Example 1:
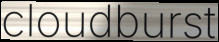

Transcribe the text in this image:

cloudburst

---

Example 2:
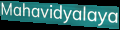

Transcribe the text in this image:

Mahavidyalaya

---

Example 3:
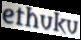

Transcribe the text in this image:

ethuku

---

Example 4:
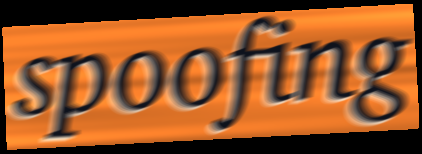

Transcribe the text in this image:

spoofing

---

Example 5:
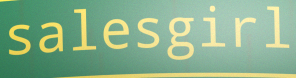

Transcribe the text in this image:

salesgirl